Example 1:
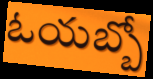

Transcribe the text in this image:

ఓయబ్బో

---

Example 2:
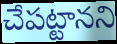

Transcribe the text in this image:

చేపట్టానని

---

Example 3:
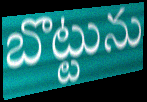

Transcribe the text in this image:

బొట్టును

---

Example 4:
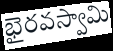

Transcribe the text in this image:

భైరవస్వామి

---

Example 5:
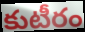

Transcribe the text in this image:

కుటీరం